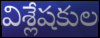
విశ్లేషకుల